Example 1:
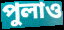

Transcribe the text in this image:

পুলাও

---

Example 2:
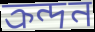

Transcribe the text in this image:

ক্রন্দন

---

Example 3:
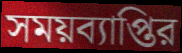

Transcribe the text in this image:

সময়ব্যাপ্তির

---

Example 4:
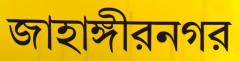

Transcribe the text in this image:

জাহাঙ্গীরনগর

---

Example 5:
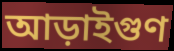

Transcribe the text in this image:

আড়াইগুণ